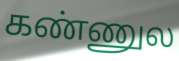
கண்ணுல